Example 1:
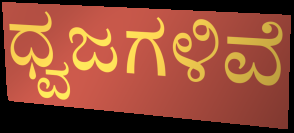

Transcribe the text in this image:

ಧ್ವಜಗಳಿವೆ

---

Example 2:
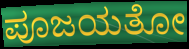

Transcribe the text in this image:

ಪೂಜಯತೋ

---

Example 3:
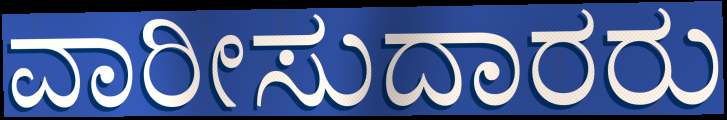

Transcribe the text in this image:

ವಾರೀಸುದಾರರು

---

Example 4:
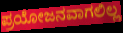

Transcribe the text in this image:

ಪ್ರಯೋಜನವಾಗಲಿಲ್ಲ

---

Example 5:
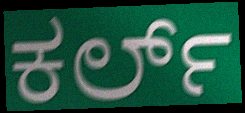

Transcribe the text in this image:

ಕರ್ಲ್